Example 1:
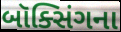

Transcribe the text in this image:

બૉક્સિંગના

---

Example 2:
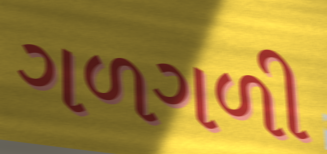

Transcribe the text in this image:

ગળગળી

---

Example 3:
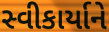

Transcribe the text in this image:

સ્વીકાર્યાને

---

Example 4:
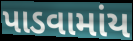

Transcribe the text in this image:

પાડવામાંય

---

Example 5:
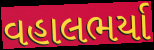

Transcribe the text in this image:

વહાલભર્યા